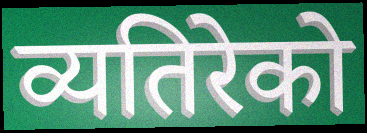
व्यतिरेको